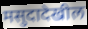
मसुदादेखील